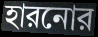
হারনোর